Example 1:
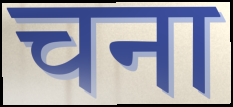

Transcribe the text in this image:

चना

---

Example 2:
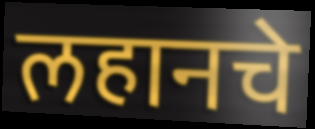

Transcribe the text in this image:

लहानचे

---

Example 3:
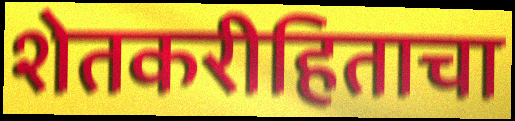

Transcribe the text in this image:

शेतकरीहिताचा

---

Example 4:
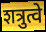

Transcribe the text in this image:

शत्रुत्वे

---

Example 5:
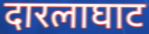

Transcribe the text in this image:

दारलाघाट